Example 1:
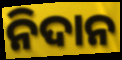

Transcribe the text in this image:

ନିଦାନ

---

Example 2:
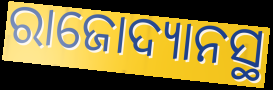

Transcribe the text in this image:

ରାଜୋଦ୍ୟାନସ୍ଥ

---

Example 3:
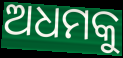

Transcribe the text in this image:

ଅଧମକୁ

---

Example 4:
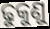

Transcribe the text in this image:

ଢୁକୁଣୁ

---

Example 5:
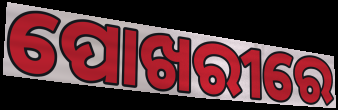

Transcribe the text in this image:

ପୋଖରୀରେ